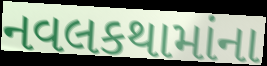
નવલકથામાંના